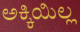
ಅಕ್ಕಿಯಿಲ್ಲ